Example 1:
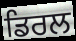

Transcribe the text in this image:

ਡਿਰਲ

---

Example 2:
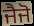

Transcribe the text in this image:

ਜੈਜੋ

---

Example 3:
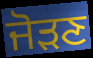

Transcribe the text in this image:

ਜੋੜਣ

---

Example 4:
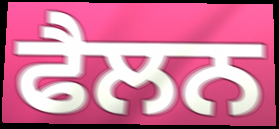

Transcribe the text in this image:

ਫੈਲਨ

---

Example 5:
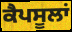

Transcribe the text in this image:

ਕੈਪਸੂਲਾਂ